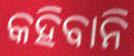
କହିବାନି